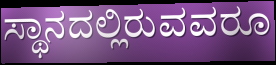
ಸ್ಥಾನದಲ್ಲಿರುವವರೂ